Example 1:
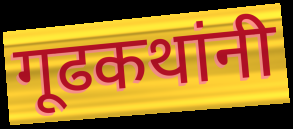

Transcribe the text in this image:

गूढकथांनी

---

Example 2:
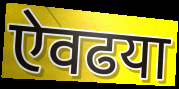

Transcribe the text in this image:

ऐवढया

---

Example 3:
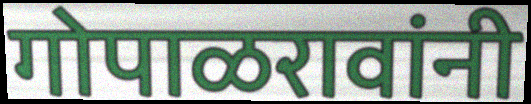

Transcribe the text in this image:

गोपाळरावांनी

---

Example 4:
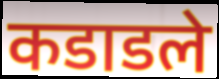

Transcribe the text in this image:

कडाडले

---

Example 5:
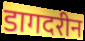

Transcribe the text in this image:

डागदरीन